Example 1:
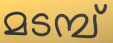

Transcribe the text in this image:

മടമ്പ്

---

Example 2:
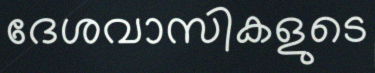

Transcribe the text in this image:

ദേശവാസികളുടെ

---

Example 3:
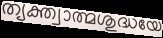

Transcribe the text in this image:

ത്യക്ത്വാത്മശുദ്ധയേ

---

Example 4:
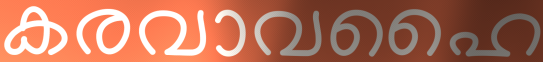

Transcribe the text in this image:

കരവാവഹൈ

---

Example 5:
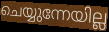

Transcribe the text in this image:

ചെയ്യുന്നേയില്ല